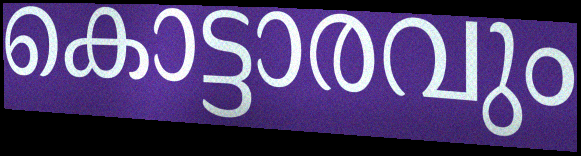
കൊട്ടാരവും